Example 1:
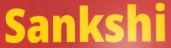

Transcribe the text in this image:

Sankshi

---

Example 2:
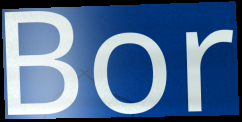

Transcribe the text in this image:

Bor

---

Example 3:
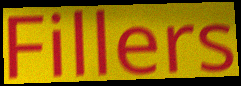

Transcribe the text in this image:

Fillers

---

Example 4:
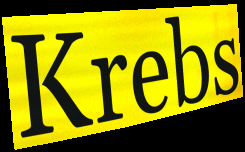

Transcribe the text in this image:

Krebs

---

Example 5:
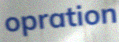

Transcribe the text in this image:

opration